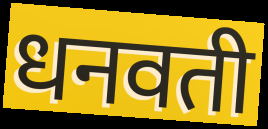
धनवती